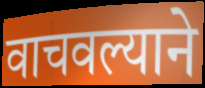
वाचवल्याने